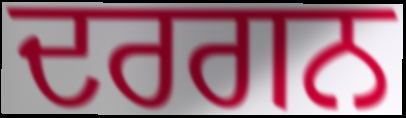
ਦਰਗਨ